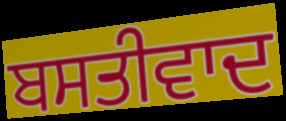
ਬਸਤੀਵਾਦ